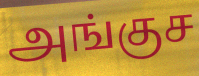
அங்குச